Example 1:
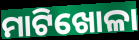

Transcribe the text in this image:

ମାଟିଖୋଳା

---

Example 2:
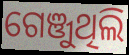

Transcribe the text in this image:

ଗେଞ୍ଜୁଥିଲି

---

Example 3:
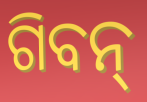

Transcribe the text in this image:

ଗିବନ୍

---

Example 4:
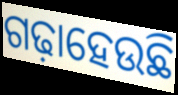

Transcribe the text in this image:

ଗଢ଼ାହେଉଛି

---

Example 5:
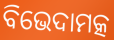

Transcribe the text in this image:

ବିଭେଦାମତ୍କ